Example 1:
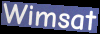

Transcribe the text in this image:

Wimsat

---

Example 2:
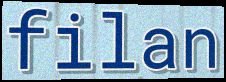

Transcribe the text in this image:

filan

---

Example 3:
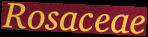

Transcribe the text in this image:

Rosaceae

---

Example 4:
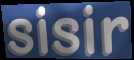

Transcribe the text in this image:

sisir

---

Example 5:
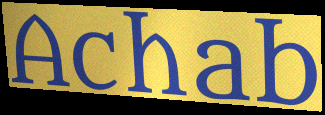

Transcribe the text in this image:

Achab